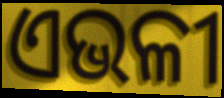
ଏଭଳୀ